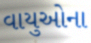
વાયુઓના